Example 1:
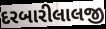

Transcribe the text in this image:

દરબારીલાલજી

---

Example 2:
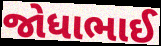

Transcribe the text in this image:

જોધાભાઈ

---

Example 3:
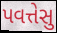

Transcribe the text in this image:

પવત્તેસુ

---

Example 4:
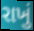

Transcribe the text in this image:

રાખું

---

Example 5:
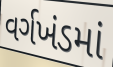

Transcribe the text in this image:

વર્ગખંડમાં